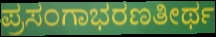
ಪ್ರಸಂಗಾಭರಣತೀರ್ಥ